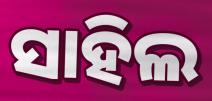
ସାହିଲ